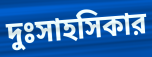
দুঃসাহসিকার